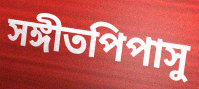
সঙ্গীতপিপাসু